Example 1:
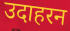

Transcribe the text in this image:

उदाहरन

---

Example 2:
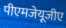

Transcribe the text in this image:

पीएमजेयूजीए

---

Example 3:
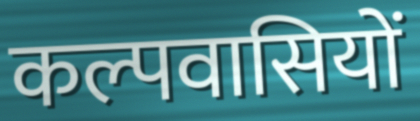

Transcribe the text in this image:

कल्पवासियों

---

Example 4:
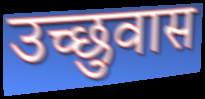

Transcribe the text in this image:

उच्छुवास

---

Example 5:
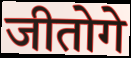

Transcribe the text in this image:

जीतोगे